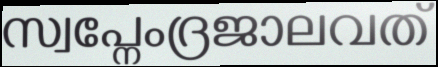
സ്വപ്നേംദ്രജാലവത്